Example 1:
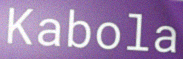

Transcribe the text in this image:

Kabola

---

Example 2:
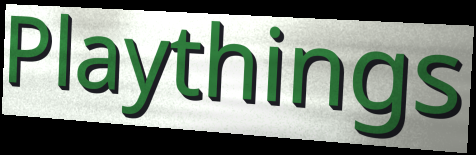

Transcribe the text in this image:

Playthings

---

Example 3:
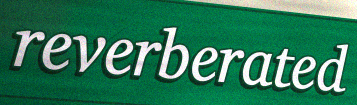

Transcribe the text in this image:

reverberated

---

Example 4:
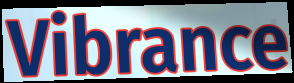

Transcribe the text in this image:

Vibrance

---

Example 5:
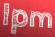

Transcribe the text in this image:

Ipm